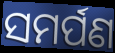
ସମର୍ପଣ